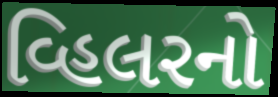
વ્હિલરનો